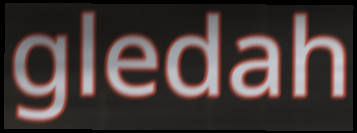
gledah